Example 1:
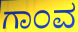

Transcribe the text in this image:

ಗಾಂವ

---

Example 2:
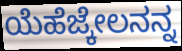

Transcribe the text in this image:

ಯೆಹೆಜ್ಕೇಲನನ್ನ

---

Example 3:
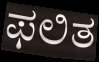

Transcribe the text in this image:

ಫಲಿತ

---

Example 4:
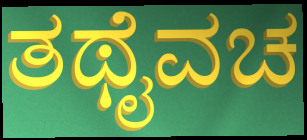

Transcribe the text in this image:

ತಥೈವಚ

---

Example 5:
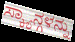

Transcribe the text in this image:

ಸ್ಕ್ಯಾನ್ಗಳನ್ನು